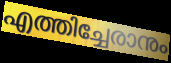
എത്തിച്ചേരാനും